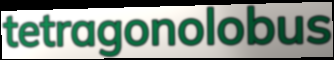
tetragonolobus